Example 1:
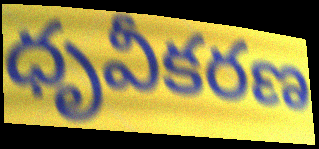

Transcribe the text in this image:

ధృవీకరణ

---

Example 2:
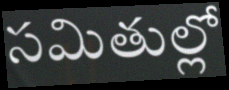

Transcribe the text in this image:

సమితుల్లో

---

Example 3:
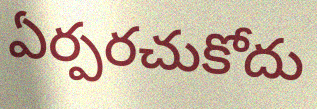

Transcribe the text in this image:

ఏర్పరచుకోదు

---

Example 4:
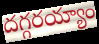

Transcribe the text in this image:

దగ్గరయ్యాం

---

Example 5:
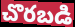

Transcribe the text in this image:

చొరబడి